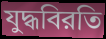
যুদ্ধবিরতি